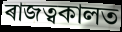
ৰাজত্বকালত